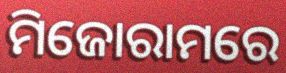
ମିଜୋରାମରେ